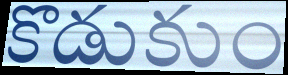
కొడుకుం